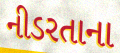
નીડરતાના